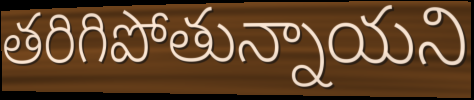
తరిగిపోతున్నాయని